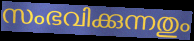
സംഭവിക്കുന്നതും